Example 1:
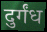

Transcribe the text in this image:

दुर्गंध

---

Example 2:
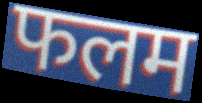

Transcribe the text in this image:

फलम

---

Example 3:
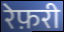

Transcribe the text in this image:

रेफ़री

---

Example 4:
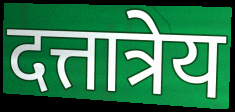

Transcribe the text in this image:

दत्तात्रेय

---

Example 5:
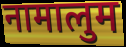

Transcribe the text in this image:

नामालुम